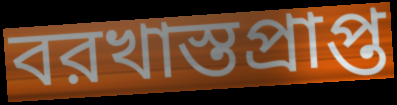
বরখাস্তপ্রাপ্ত